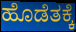
ಹೊಡೆತಕ್ಕೆ